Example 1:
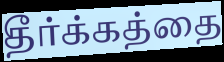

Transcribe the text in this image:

தீர்க்கத்தை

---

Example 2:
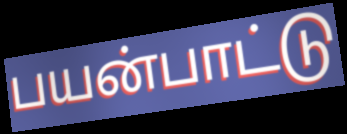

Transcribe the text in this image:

பயன்பாட்டு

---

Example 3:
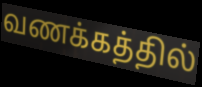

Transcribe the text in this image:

வணக்கத்தில்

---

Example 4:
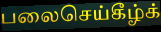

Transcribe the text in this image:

பலைசெய்கீழ்க்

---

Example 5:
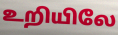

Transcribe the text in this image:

உறியிலே